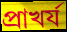
প্রাখর্য